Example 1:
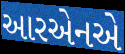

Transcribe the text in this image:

આરએનએ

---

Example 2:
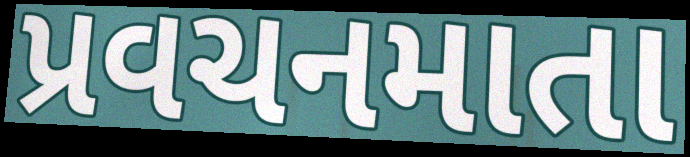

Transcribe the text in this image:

પ્રવચનમાતા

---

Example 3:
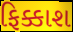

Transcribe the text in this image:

ફિક્કાશ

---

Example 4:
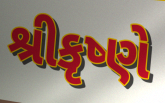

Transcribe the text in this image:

શ્રીકૃષ્ણે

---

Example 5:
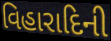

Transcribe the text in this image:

વિહારાદિની